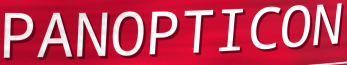
PANOPTICON